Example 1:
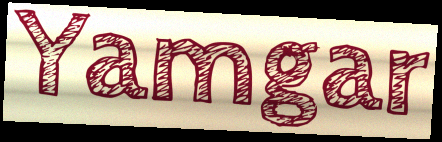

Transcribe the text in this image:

Yamgar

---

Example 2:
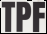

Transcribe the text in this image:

TPF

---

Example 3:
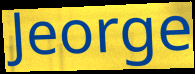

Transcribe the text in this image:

Jeorge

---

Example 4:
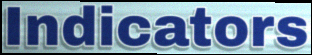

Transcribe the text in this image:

Indicators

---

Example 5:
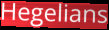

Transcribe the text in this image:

Hegelians